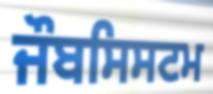
ਜੌਬਸਿਸਟਮ